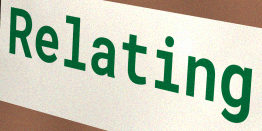
Relating